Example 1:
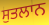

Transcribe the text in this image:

ਸੁਤਲਾਨ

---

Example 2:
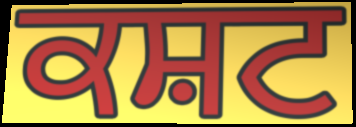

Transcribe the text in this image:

ਕਸ਼ਟ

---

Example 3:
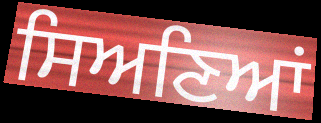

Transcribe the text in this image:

ਸਿਅਣਿਆਂ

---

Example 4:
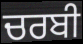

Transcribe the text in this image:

ਚਰਬੀ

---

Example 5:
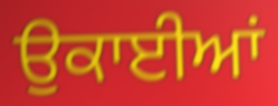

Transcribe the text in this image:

ਉਕਾਈਆਂ